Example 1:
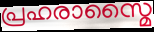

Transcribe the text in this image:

പ്രഹരാസ്മൈ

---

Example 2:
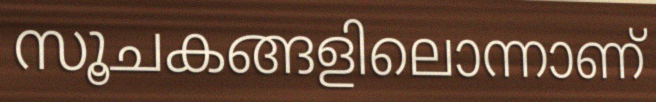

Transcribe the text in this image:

സൂചകങ്ങളിലൊന്നാണ്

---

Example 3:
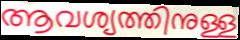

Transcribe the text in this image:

ആവശ്യത്തിനുള്ള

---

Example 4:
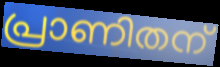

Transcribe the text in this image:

പ്രാണിതന്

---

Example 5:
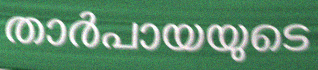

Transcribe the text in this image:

താർപായയുടെ